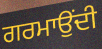
ਗਰਮਾਉਂਦੀ